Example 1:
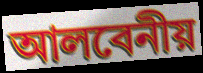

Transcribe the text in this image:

আলবেনীয়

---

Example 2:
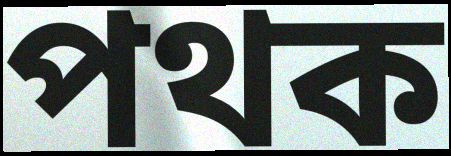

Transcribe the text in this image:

পথক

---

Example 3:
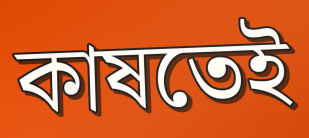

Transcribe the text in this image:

কাষতেই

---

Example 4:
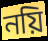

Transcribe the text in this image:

নয়ি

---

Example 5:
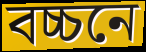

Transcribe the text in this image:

বচ্চনে